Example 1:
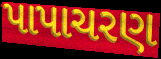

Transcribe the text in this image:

પાપાચરણ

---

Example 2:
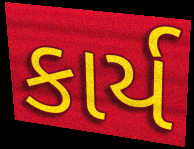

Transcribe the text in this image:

કાર્ય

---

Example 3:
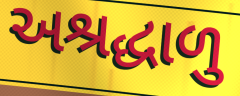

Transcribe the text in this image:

અશ્રદ્ધાળુ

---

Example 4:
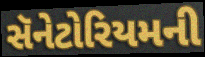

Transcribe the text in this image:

સૅનેટોરિયમની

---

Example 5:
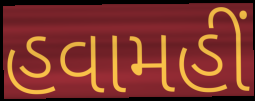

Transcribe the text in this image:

હવામહીં